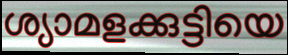
ശ്യാമളക്കുട്ടിയെ